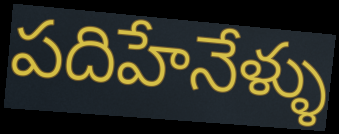
పదిహేనేళ్ళు